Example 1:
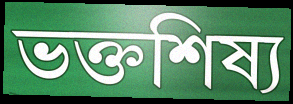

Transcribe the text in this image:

ভক্তশিষ্য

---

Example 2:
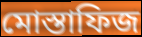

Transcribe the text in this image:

মোস্তাফিজ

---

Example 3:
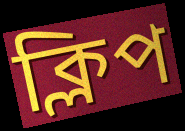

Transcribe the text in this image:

ক্লিপ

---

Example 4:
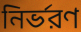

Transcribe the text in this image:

নির্ভরণ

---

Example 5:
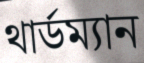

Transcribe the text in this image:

থার্ডম্যান